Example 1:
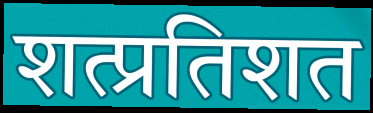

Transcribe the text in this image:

शत्प्रतिशत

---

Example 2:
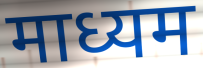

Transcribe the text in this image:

माध्यम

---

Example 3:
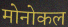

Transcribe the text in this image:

मोनोकल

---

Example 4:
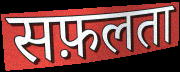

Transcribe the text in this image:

सफ़लता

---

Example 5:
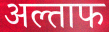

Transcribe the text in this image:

अल्ताफ